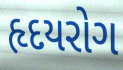
હૃદયરોગ